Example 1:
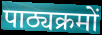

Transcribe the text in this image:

पाठ्यक्रमों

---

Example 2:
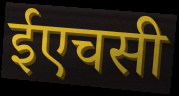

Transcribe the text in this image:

ईएचसी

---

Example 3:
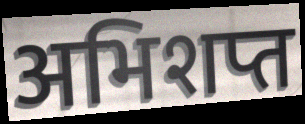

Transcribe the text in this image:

अभिशप्त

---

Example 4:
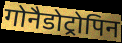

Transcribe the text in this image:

गोनैडोट्रोपिन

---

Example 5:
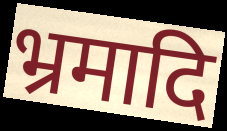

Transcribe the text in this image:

भ्रमादि